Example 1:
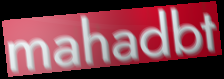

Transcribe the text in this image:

mahadbt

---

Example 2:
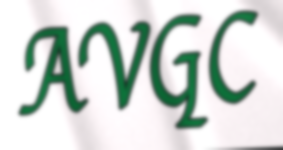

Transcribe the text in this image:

AVGC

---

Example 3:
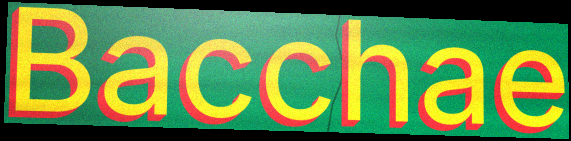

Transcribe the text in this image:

Bacchae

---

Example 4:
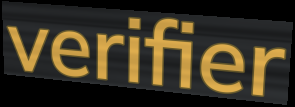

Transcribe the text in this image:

verifier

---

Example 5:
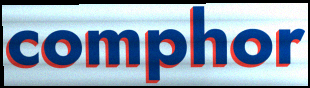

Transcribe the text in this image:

comphor